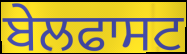
ਬੇਲਫਾਸਟ